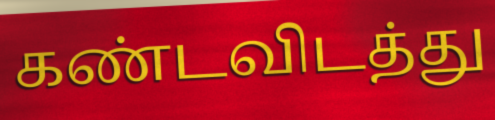
கண்டவிடத்து